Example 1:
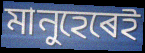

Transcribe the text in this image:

মানুহেৰেই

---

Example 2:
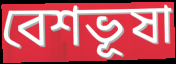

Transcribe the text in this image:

বেশভূষা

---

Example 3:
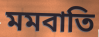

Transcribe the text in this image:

মমবাতি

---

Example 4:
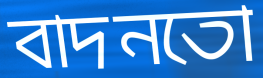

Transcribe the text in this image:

বাদনতো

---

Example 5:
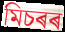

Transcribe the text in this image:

মিচৰৰ